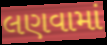
લણવામાં